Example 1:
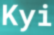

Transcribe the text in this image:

Kyi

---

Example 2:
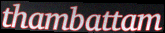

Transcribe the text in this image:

thambattam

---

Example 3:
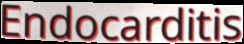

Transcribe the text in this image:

Endocarditis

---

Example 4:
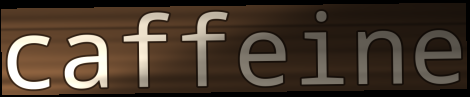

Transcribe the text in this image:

caffeine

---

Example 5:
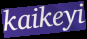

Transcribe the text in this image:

kaikeyi